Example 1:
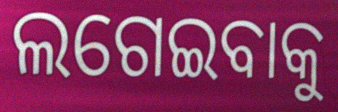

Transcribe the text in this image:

ଲଗେଇବାକୁ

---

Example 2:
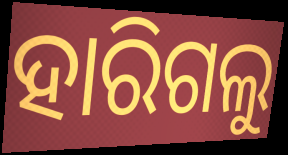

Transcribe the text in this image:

ହାରିଗଲୁ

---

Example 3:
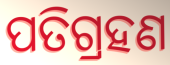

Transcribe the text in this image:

ପତିଗ୍ରହଣ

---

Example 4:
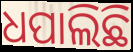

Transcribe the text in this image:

ଧପାଲିଛି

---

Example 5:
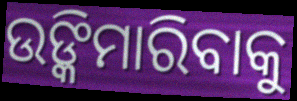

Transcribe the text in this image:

ଉଙ୍କିମାରିବାକୁ